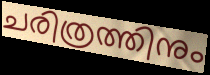
ചരിത്രത്തിനും